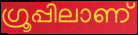
ഗ്രൂപ്പിലാണ്